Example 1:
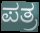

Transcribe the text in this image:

ಪತ್ರ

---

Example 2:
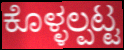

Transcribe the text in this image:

ಕೊಳ್ಳಲ್ಪಟ್ಟ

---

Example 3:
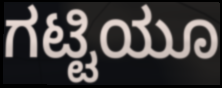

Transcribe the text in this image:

ಗಟ್ಟಿಯೂ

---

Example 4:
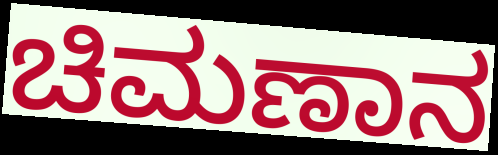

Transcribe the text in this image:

ಚಿಮಣಾನ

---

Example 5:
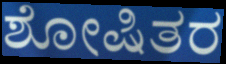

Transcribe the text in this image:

ಶೋಷಿತರ